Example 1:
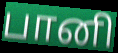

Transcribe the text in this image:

பானி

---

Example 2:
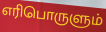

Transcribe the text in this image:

எரிபொருளும்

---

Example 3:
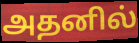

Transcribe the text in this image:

அதனில்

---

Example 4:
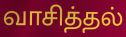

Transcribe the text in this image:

வாசித்தல்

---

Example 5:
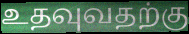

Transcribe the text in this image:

உதவுவதற்கு